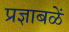
प्रज्ञाबळें